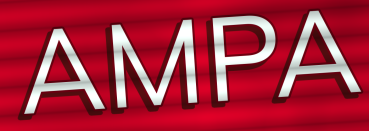
AMPA